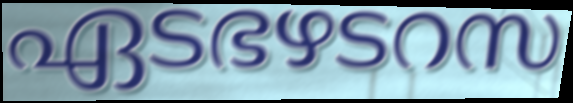
ഏടഭഴടറസ